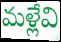
మళ్లేవి